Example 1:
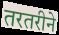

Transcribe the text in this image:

तरतरीने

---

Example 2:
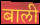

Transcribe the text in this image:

बाली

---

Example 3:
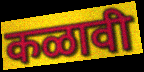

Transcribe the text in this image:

कळावी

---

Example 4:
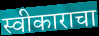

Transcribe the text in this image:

स्वीकाराचा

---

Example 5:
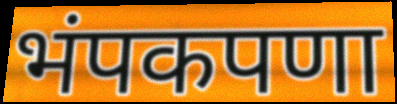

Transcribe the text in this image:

भंपकपणा